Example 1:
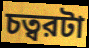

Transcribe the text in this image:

চত্বরটা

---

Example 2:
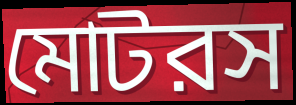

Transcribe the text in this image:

মোটরস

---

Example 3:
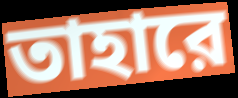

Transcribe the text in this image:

তাহারে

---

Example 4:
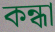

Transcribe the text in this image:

কন্ধা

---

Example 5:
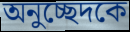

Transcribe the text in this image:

অনুচ্ছেদকে